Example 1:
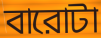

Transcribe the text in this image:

বারোটা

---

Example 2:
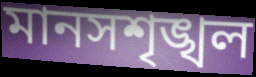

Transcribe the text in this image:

মানসশৃঙ্খল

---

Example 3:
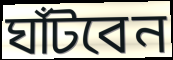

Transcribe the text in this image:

ঘাঁটবেন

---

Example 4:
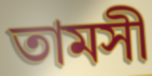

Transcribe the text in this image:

তামসী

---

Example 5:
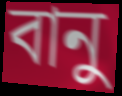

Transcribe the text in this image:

বানু